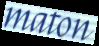
maton